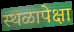
स्थळापेक्षा